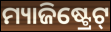
ମ୍ୟାଜିଷ୍ଟ୍ରେଟ୍